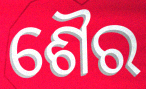
ଶୈର